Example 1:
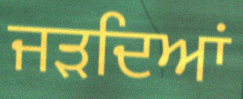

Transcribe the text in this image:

ਜੜਦਿਆਂ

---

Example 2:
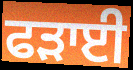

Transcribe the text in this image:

ਫੜਾਈ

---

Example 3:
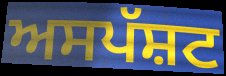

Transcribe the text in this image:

ਅਸਪੱਸ਼ਟ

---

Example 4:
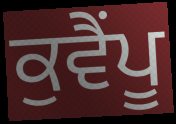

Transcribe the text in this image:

ਕੁਵੈਂਪੂ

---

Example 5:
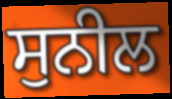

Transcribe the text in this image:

ਸੁਨੀਲ